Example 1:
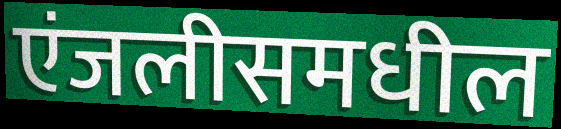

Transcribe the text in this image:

एंजलीसमधील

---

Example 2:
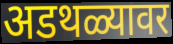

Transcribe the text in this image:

अडथळ्यावर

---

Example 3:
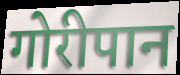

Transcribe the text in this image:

गोरीपान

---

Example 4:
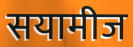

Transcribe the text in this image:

सयामीज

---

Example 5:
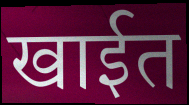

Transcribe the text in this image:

खाईत